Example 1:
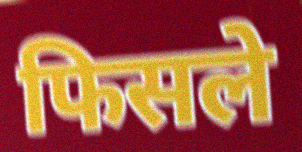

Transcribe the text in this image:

फिसले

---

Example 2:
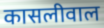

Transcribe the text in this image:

कासलीवाल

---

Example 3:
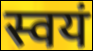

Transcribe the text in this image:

स्वयं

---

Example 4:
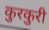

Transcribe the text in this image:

कुरकुरी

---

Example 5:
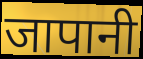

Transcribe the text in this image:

जापानी